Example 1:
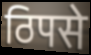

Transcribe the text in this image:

ठिपसे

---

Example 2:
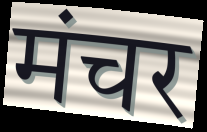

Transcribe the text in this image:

मंचर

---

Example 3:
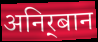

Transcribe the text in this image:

अनिर्बान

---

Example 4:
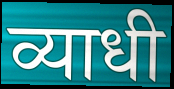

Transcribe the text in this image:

व्याधी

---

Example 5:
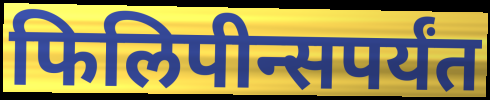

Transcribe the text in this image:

फिलिपीन्सपर्यंत